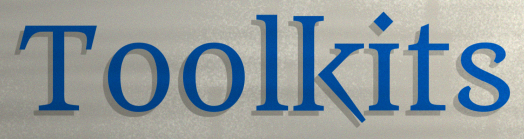
Toolkits